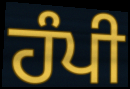
ਹੰਪੀ